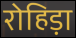
रोहिड़ा